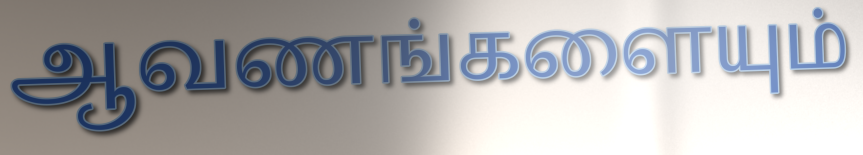
ஆவணங்களையும்